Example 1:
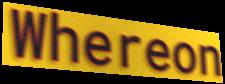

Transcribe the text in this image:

Whereon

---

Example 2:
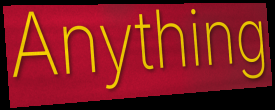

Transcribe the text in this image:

Anything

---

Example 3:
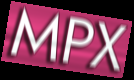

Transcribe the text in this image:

MPX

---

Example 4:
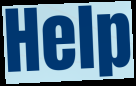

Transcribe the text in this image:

Help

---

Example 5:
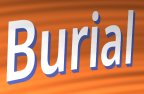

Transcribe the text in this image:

Burial